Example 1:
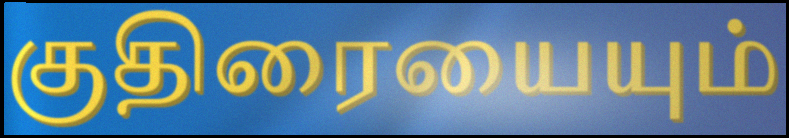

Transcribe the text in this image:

குதிரையையும்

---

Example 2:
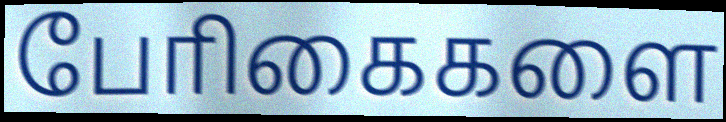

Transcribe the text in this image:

பேரிகைகளை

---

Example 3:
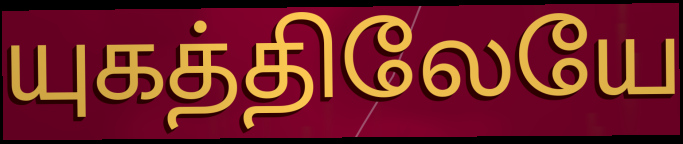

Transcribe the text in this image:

யுகத்திலேயே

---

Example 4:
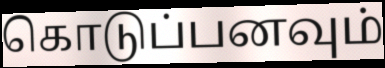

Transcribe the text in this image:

கொடுப்பனவும்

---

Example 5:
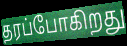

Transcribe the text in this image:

தரப்போகிறது